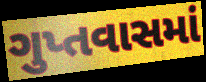
ગુપ્તવાસમાં